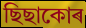
ছিছাকোৰ